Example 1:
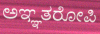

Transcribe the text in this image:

ಅಞ್ಞತರೋಪಿ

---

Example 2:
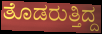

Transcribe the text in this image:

ತೊಡರುತ್ತಿದ್ದ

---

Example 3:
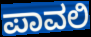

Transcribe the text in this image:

ಪಾವಲಿ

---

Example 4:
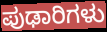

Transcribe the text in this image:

ಪುಢಾರಿಗಳು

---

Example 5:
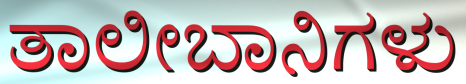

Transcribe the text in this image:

ತಾಲೀಬಾನಿಗಳು